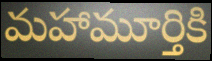
మహామూర్తికి